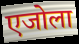
एजोला